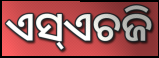
ଏସ୍ଏଚଜି